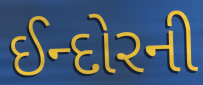
ઈન્દોરની